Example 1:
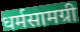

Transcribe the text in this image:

धर्मसामग्री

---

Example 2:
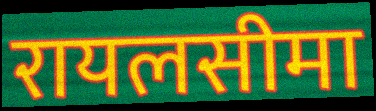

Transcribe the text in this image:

रायलसीमा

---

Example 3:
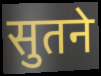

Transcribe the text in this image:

सुतने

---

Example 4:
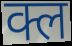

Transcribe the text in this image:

क्ल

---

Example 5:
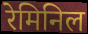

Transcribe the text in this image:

रेमिनिल